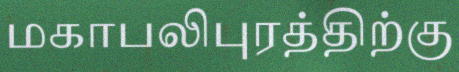
மகாபலிபுரத்திற்கு